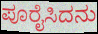
ಪೂರೈಸಿದನು